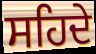
ਸਹਿਦੇ